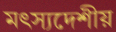
মৎস্যদেশীয়